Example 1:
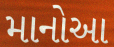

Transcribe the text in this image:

માનોઆ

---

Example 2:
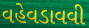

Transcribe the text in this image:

વહેવડાવવી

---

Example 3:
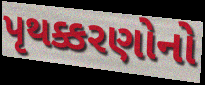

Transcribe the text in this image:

પૃથક્કરણોનો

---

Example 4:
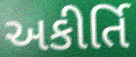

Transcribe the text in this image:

અકીર્તિ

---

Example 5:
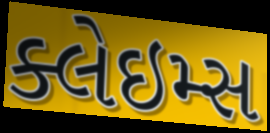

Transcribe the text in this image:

ક્લેઇમ્સ